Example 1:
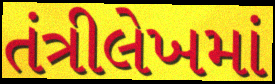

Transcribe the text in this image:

તંત્રીલેખમાં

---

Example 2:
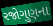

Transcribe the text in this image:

રજોગુણના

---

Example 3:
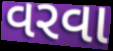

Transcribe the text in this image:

વરવા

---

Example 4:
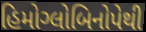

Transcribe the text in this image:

હિમોગ્લોબિનોપેથી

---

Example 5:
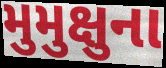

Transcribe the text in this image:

મુમુક્ષુના